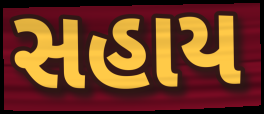
સહાય